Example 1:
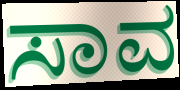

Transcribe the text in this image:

ಸಾವ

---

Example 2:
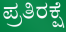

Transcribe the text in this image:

ಪ್ರತಿರಕ್ಷೆ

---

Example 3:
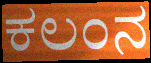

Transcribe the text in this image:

ಕಲಂನ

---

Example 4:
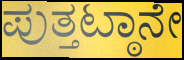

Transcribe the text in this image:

ಪುತ್ತಟ್ಠಾನೇ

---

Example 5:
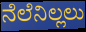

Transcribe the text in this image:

ನೆಲೆನಿಲ್ಲಲು